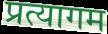
प्रत्यागम